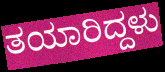
ತಯಾರಿದ್ದಳು